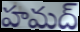
హమద్